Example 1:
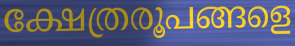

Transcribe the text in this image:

ക്ഷേത്രരൂപങ്ങളെ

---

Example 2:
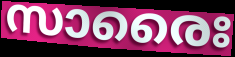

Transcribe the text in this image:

സാരൈഃ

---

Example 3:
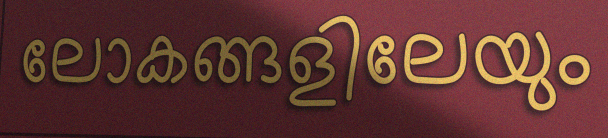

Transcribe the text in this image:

ലോകങ്ങളിലേയും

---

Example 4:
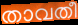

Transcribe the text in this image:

താവതീ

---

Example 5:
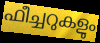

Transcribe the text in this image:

ഫീച്ചറുകളും